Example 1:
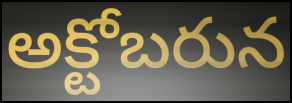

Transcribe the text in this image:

అక్టోబరున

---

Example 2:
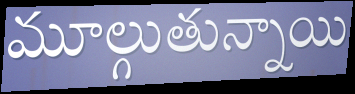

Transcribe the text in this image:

మూల్గుతున్నాయి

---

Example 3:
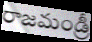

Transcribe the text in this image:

రాజమండ్రీ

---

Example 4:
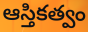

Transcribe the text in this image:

ఆస్తికత్వం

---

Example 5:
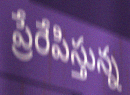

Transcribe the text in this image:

ప్రేరేపిస్తున్న